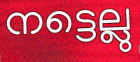
നട്ടെല്ലു